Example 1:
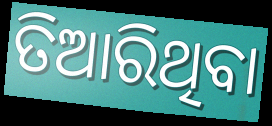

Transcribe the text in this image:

ତିଆରିଥିବା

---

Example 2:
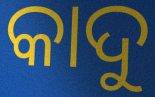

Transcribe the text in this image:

କାଦୁ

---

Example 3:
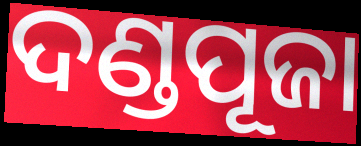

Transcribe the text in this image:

ଦଣ୍ଡପୂଜା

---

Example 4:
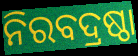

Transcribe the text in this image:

ନିରବଦ୍ରଷ୍ଠା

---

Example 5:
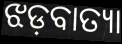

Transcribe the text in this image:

ଝଡ଼ବାତ୍ୟା